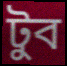
টুব